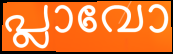
പ്ലാവോ